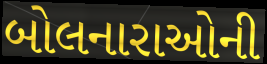
બોલનારાઓની